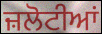
ਜ਼ਲੋਟੀਆਂ